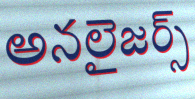
అనలైజర్స్